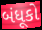
બંધૂકો